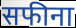
सफीना